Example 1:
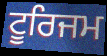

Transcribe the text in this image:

ਟੂਰਿਜਮ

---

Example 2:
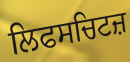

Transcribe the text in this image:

ਲਿਫਸਚਿਟਜ਼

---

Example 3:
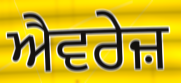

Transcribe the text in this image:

ਐਵਰੇਜ਼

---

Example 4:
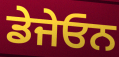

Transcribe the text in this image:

ਡੇਜੇਓਨ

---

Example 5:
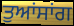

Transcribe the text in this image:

ਤੁਆਂਸਾਂਗ